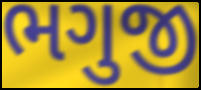
ભગુજી